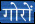
गोरों